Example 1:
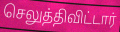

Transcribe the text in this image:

செலுத்திவிட்டார்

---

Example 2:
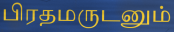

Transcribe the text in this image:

பிரதமருடனும்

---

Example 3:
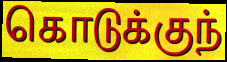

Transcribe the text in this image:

கொடுக்குந்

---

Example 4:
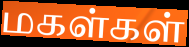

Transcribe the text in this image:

மகள்கள்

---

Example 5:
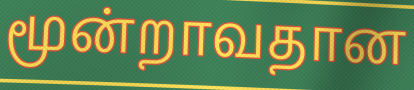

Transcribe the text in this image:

மூன்றாவதான